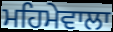
ਮਹਿਮੇਵਾਲਾ